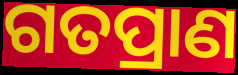
ଗତପ୍ରାଣ